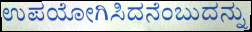
ಉಪಯೋಗಿಸಿದನೆಂಬುದನ್ನು